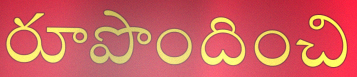
రూపొందించి